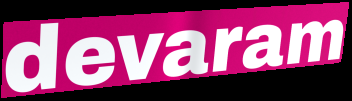
devaram